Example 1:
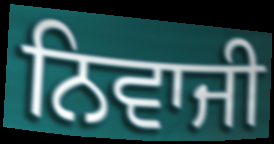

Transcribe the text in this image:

ਨਿਵਾਜੀ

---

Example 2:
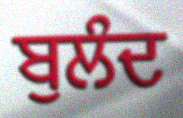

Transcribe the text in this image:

ਬੁਲੰਦ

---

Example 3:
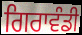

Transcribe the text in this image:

ਗਿਰਾਵੰਡੀ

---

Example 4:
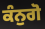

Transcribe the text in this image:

ਕੰਨੁਗੋ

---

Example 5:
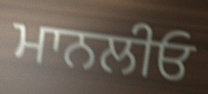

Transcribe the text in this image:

ਮਾਨਲੀਓ